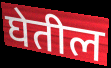
घेतील